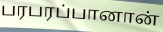
பரபரப்பானான்